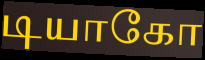
டியாகோ